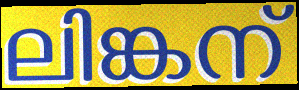
ലിങ്കന്